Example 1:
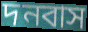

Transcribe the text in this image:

দনবাস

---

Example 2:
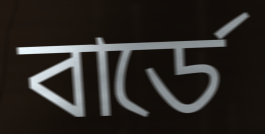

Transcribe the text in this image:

বার্ডে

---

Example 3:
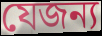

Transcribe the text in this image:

যেজন্য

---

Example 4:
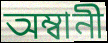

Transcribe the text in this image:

অম্বানী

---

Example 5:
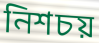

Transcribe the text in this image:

নিশচয়